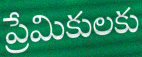
ప్రేమికులకు